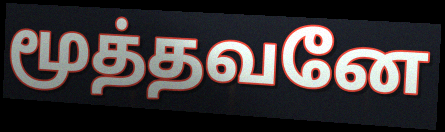
மூத்தவனே